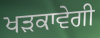
ਖੜਕਾਵੇਗੀ